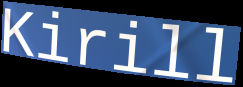
Kirill